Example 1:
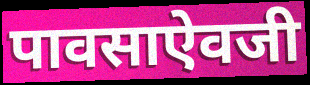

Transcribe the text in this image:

पावसाऐवजी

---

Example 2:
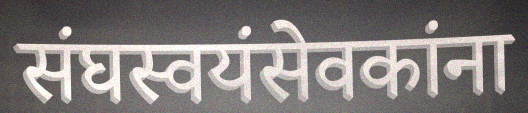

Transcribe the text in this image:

संघस्वयंसेवकांना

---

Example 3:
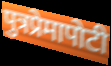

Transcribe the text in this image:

पुत्रप्रेमापोटी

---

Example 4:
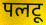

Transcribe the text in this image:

पलटू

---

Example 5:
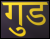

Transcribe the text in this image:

गुड